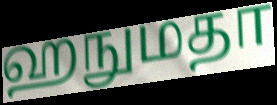
ஹநுமதா